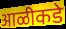
आळीकडे